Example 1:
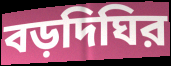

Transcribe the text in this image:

বড়দিঘির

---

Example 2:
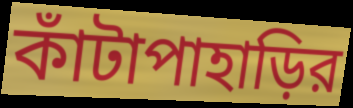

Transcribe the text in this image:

কাঁটাপাহাড়ির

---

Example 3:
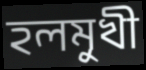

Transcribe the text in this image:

হলমুখী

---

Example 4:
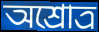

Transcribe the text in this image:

অশ্রোত্র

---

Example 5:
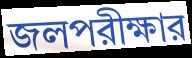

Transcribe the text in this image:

জলপরীক্ষার